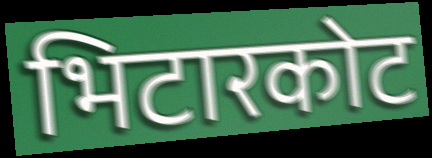
भिटारकोट